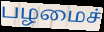
பழமைச்